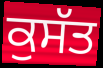
ਕੁਸੱਤ